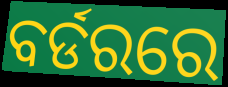
ବର୍ଡରରେ